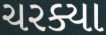
ચરક્યા